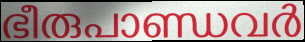
ഭീരുപാണ്ഡവർ